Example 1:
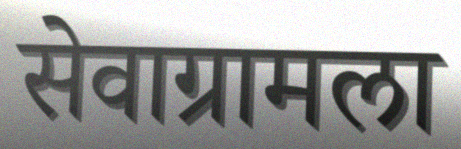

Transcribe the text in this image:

सेवाग्रामला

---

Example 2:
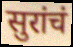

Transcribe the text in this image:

सुरांचं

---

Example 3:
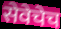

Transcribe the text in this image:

सेवेचेच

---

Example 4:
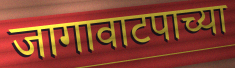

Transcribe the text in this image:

जागावाटपाच्या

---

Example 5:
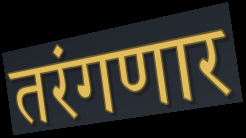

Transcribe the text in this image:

तरंगणार